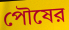
পৌষের